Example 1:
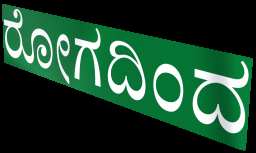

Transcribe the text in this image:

ರೋಗದಿಂದ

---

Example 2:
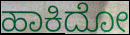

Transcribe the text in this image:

ಹಾಕಿದೋ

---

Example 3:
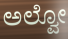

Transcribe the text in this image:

ಅಲ್ವೋ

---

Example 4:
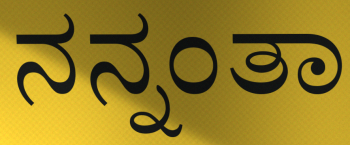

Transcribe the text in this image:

ನನ್ನಂತಾ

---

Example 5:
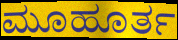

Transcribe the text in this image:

ಮೂಹೂರ್ತ